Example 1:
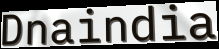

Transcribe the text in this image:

Dnaindia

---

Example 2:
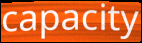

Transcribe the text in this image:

capacity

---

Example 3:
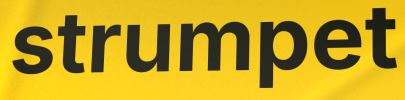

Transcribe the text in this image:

strumpet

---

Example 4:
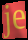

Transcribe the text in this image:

je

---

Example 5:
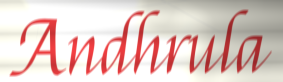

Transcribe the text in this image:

Andhrula